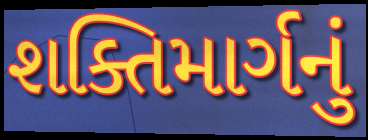
શક્તિમાર્ગનું